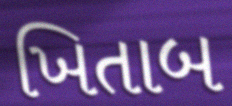
ખિતાબ